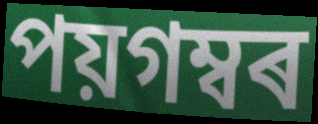
পয়গম্বৰ